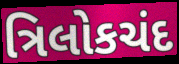
ત્રિલોકચંદ